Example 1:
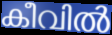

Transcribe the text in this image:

കീവിൽ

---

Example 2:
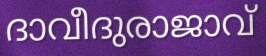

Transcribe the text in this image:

ദാവീദുരാജാവ്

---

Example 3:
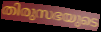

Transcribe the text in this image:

തിരുസഭയുടെ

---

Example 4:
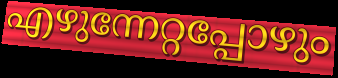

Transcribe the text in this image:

എഴുന്നേറ്റപ്പോഴും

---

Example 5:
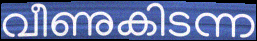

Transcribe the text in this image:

വീണുകിടന്ന